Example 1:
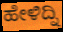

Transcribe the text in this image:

ಹೇಳಿದ್ನಿ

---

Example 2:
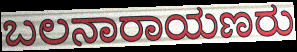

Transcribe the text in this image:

ಬಲನಾರಾಯಣರು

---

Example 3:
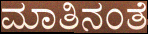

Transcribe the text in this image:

ಮಾತಿನಂತೆ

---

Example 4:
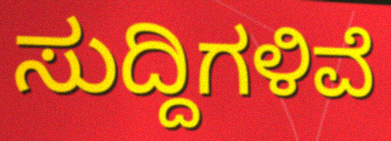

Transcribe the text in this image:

ಸುದ್ದಿಗಳಿವೆ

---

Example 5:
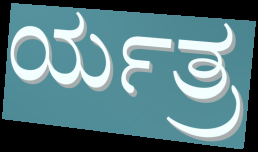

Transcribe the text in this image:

ರ್ಯತ್ರ